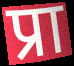
प्रा